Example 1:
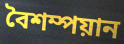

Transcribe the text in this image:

বৈশম্পয়ান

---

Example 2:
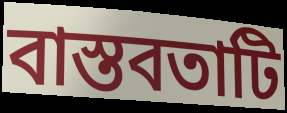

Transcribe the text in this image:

বাস্তবতাটি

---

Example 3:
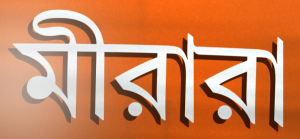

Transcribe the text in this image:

মীরারা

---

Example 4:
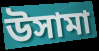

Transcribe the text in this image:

উসামা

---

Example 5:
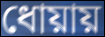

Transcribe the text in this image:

ধোয়ায়